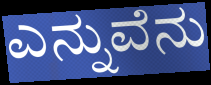
ಎನ್ನುವೆನು